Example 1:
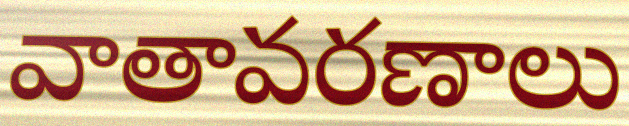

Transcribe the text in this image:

వాతావరణాలు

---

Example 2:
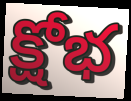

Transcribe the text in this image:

క్షోభ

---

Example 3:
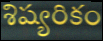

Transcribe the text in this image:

శిష్యరికం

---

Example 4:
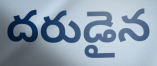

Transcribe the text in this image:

దరుడైన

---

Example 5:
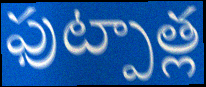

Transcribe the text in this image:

ఫుట్పాత్ల